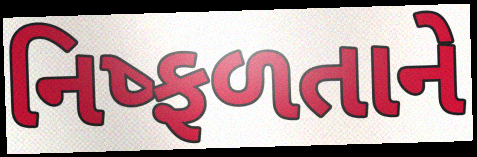
નિષ્ફળતાને